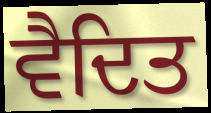
ਵੈਦਿਤ